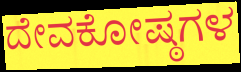
ದೇವಕೋಷ್ಠಗಳ